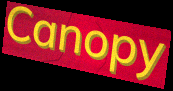
Canopy